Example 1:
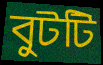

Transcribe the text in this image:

বুটটি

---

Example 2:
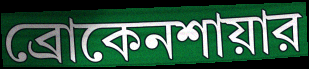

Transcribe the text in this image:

ব্রোকেনশায়ার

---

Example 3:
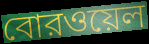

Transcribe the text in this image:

বোরওয়েল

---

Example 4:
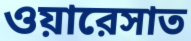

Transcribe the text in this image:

ওয়ারেসাত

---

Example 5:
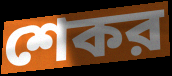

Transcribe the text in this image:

শেকর